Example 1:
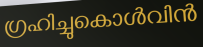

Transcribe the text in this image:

ഗ്രഹിച്ചുകൊൾവിൻ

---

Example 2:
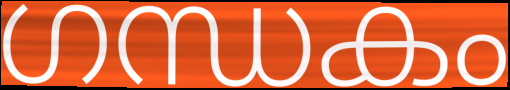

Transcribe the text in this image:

ഗന്ധകം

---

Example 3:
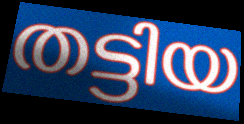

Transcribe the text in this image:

തട്ടിയ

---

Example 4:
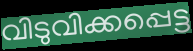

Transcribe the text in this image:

വിടുവിക്കപ്പെട്ട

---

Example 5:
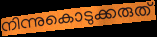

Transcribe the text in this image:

നിന്നുകൊടുക്കരുത്